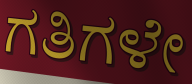
ಗತಿಗಳೇ